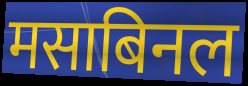
मसाबिनल